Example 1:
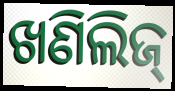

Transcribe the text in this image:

ଖଣିଲିଜ୍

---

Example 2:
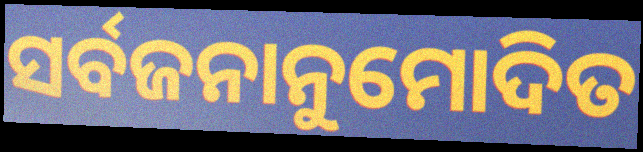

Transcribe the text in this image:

ସର୍ବଜନାନୁମୋଦିତ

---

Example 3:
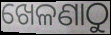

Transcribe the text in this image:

ଖେଳଣାଠୁ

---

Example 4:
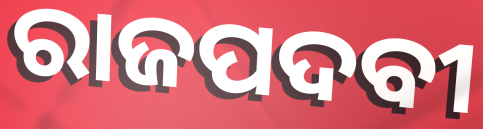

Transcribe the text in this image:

ରାଜପଦବୀ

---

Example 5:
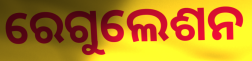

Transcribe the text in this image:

ରେଗୁଲେଶନ